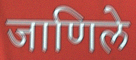
जाणिले